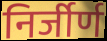
निर्जीर्ण